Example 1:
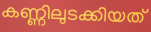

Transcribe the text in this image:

കണ്ണിലുടക്കിയത്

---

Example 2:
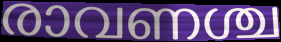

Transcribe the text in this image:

രാവണശ്ച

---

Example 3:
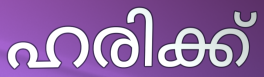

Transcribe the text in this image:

ഹരിക്ക്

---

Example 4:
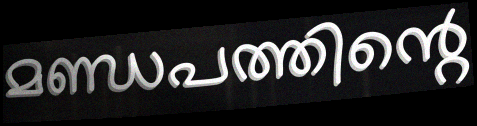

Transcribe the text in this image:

മണ്ഡപത്തിന്റെ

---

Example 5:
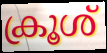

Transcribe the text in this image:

ക്രൂശ്